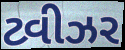
ટ્વીઝર